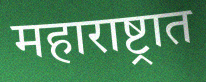
महाराष्ट्रात